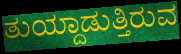
ತುಯ್ದಾಡುತ್ತಿರುವ